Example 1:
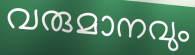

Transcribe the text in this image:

വരുമാനവും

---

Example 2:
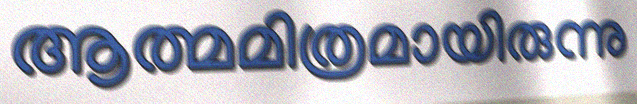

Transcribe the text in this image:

ആത്മമിത്രമായിരുന്നു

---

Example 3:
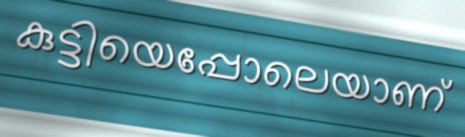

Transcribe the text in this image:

കുട്ടിയെപ്പോലെയാണ്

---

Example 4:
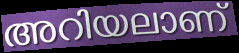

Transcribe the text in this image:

അറിയലാണ്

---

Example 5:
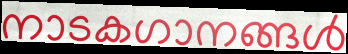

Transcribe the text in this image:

നാടകഗാനങ്ങൾ